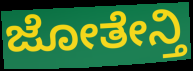
ಜೋತೇನ್ತಿ